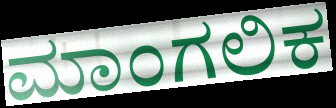
ಮಾಂಗಲಿಕ